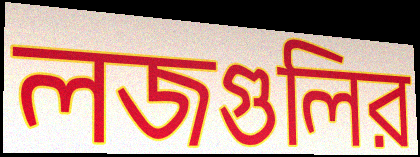
লজগুলির